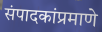
संपादकांप्रमाणे